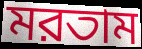
মরতাম